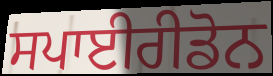
ਸਪਾਈਰੀਡੋਨ